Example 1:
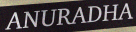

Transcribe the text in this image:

ANURADHA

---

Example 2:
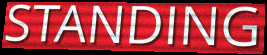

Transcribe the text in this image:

STANDING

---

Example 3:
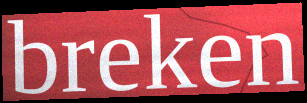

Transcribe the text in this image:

breken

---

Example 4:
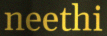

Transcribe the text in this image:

neethi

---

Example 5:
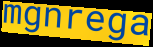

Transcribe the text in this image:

mgnrega